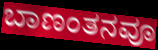
ಬಾಣಂತನವೂ